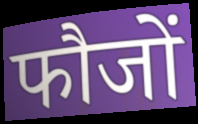
फौजों